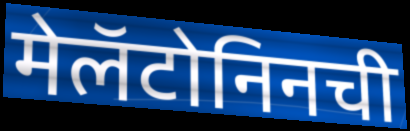
मेलॅटोनिनची